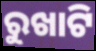
ରୁଖାଟି